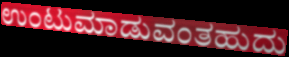
ಉಂಟುಮಾಡುವಂತಹುದು